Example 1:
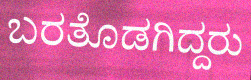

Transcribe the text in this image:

ಬರತೊಡಗಿದ್ದರು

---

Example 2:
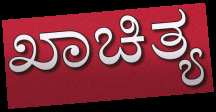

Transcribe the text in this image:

ಖಾಚಿತ್ಯ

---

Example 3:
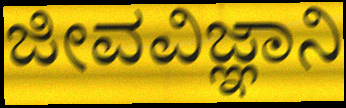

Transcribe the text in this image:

ಜೀವವಿಜ್ಞಾನಿ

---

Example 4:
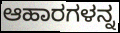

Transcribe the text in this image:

ಆಹಾರಗಳನ್ನ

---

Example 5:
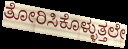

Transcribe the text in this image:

ತೋರಿಸಿಕೊಳ್ಳುತ್ತಲೇ